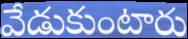
వేడుకుంటారు